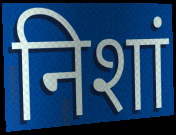
निशां